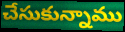
చేసుకున్నాము